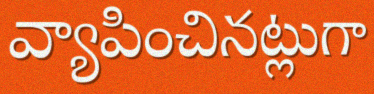
వ్యాపించినట్లుగా